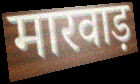
मारवाड़